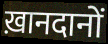
ख़ानदानों